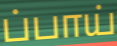
ப்பாய்